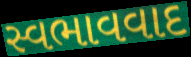
સ્વભાવવાદ